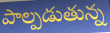
పాల్పడుతున్న